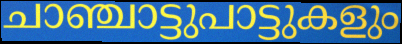
ചാഞ്ചാട്ടുപാട്ടുകളും